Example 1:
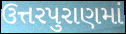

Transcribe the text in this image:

ઉત્તરપુરાણમાં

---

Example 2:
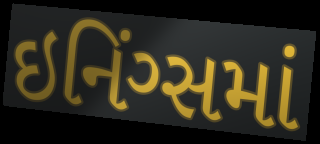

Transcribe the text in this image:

ઇનિંગ્સમાં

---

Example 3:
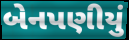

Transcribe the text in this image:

બેનપણીયું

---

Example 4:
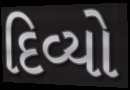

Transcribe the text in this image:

દિવ્યો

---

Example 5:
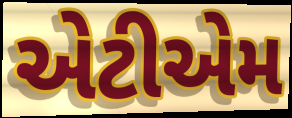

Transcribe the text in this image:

એટીએમ